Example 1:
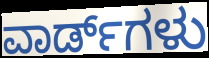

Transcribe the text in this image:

ವಾರ್ಡ್‌ಗಳು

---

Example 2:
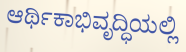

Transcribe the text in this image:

ಆರ್ಥಿಕಾಭಿವೃದ್ಧಿಯಲ್ಲಿ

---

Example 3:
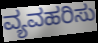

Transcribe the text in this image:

ವ್ಯವಹರಿಸು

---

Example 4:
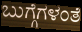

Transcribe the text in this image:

ಬುಗ್ಗೆಗಳಂತೆ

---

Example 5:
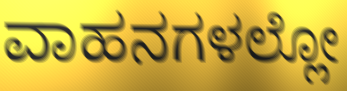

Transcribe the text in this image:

ವಾಹನಗಳಲ್ಲೋ